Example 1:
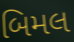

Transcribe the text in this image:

બિમલ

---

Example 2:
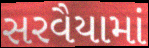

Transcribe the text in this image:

સરવૈયામાં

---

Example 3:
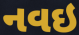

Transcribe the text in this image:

નવઇ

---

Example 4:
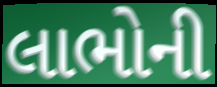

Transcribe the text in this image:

લાભોની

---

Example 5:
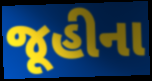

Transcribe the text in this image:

જૂહીના